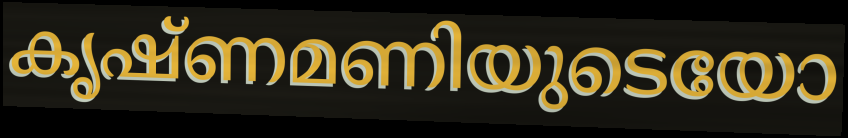
കൃഷ്ണമണിയുടെയോ